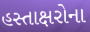
હસ્તાક્ષરોના